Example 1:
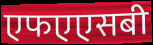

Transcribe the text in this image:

एफएएसबी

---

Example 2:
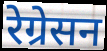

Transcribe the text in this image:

रेग्रेसन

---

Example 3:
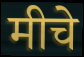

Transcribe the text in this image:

मीचे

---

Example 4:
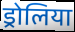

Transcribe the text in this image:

ड्रोलिया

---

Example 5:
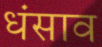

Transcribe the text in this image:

धंसाव